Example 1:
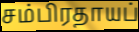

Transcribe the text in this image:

சம்பிரதாயப்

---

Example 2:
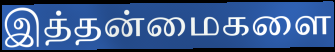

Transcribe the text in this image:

இத்தன்மைகளை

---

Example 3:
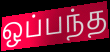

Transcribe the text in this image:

ஒப்பந்த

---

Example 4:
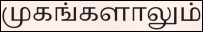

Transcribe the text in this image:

முகங்களாலும்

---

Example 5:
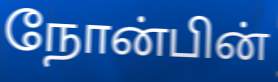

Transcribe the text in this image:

நோன்பின்